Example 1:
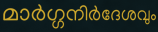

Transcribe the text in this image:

മാർഗ്ഗനിർദേശവും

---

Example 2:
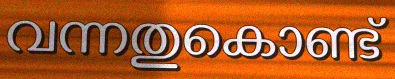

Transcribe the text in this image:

വന്നതുകൊണ്ട്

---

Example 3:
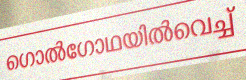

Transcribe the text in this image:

ഗൊൽഗോഥയിൽവെച്ച്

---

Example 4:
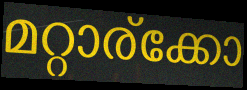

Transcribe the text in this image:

മറ്റാര്ക്കോ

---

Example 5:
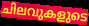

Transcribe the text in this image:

ചിലവുകളുടെ